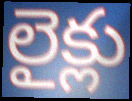
లైక్లు